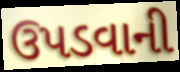
ઉપડવાની